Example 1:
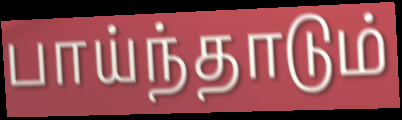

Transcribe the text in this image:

பாய்ந்தாடும்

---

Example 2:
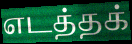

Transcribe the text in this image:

எடத்தக்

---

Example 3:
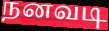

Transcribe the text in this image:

நனவடி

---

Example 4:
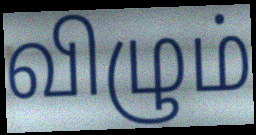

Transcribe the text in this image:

விழும்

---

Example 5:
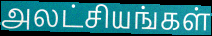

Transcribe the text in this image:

அலட்சியங்கள்